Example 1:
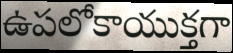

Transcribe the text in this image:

ఉపలోకాయుక్తగా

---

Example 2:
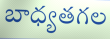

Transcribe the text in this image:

బాధ్యతగల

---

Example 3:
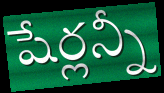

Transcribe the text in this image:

షేర్లన్నీ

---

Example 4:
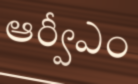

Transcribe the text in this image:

ఆర్వీఎం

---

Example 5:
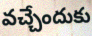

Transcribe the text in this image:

వచ్చేందుకు